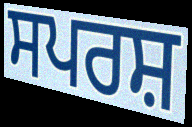
ਸਪਰਸ਼